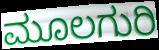
ಮೂಲಗುರಿ